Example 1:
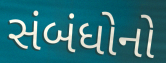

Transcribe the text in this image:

સંબંધોનો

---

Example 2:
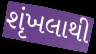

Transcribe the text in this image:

શૃંખલાથી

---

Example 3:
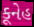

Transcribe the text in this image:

કૂનેહ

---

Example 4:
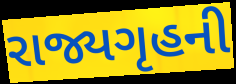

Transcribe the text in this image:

રાજ્યગૃહની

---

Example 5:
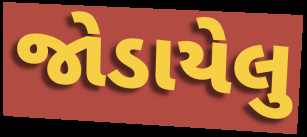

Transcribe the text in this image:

જોડાયેલુ